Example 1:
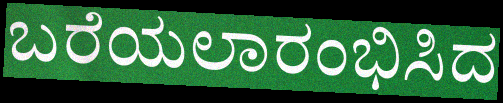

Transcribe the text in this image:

ಬರೆಯಲಾರಂಭಿಸಿದ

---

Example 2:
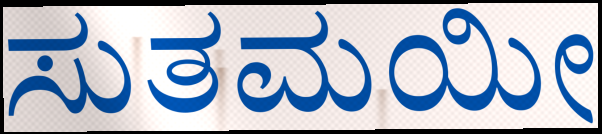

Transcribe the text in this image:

ಸುತಮಯೀ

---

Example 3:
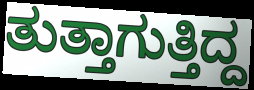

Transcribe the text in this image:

ತುತ್ತಾಗುತ್ತಿದ್ದ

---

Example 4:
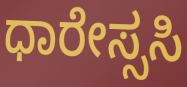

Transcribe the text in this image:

ಧಾರೇಸ್ಸಸಿ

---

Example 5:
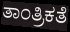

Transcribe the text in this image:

ತಾಂತ್ರಿಕತೆ